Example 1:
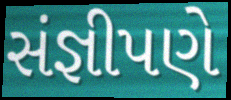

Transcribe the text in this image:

સંજ્ઞીપણે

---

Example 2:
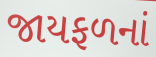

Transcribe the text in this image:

જાયફળનાં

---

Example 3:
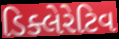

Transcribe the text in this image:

ડિક્લેરેટિવ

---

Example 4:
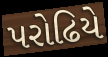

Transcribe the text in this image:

પરોઢિયે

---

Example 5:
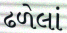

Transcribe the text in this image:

ઢળેલાં